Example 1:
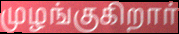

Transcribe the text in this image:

முழங்குகிறார்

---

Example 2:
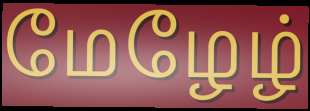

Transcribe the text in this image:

மேழேழ்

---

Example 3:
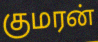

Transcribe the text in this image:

குமரன்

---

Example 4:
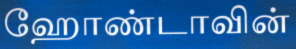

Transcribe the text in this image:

ஹோண்டாவின்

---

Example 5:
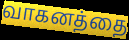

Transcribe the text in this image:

வாகனத்தை